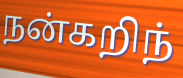
நன்கறிந்